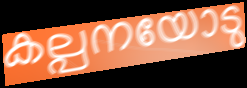
കല്പനയോടു